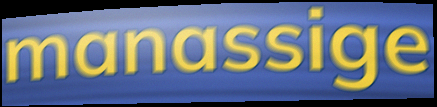
manassige